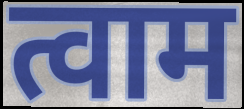
त्वाम